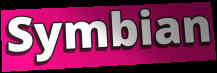
Symbian